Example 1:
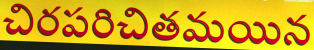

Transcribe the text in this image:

చిరపరిచితమయిన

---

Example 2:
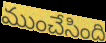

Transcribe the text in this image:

ముంచేసింది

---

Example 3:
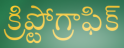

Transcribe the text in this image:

క్రిప్టోగ్రాఫిక్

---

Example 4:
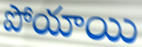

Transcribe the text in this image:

పోయాయి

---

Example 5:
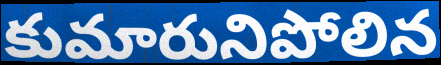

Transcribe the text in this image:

కుమారునిపోలిన